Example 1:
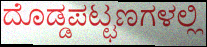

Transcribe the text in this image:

ದೊಡ್ಡಪಟ್ಟಣಗಳಲ್ಲಿ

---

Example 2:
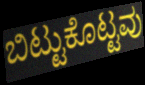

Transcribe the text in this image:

ಬಿಟ್ಟುಕೊಟ್ಟವು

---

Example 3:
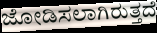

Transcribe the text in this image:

ಜೋಡಿಸಲಾಗಿರುತ್ತದೆ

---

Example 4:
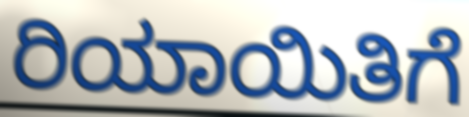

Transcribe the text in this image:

ರಿಯಾಯಿತಿಗೆ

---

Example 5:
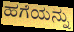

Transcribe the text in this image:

ಹಗೆಯನ್ನು